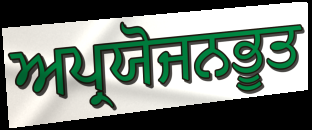
ਅਪ੍ਰਯੋਜਨਭੂਤ